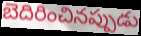
బెదిరించినప్పుడు